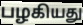
பழகியது